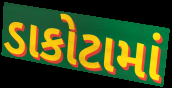
ડાકોટામાં